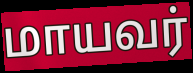
மாயவர்